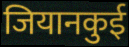
जियानकुई